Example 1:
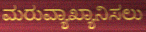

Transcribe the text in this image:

ಮರುವ್ಯಾಖ್ಯಾನಿಸಲು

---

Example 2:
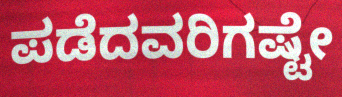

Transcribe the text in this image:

ಪಡೆದವರಿಗಷ್ಟೇ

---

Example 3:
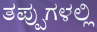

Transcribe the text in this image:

ತಪ್ಪುಗಳಲ್ಲಿ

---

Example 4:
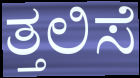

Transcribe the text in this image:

ತ್ತಲಿಸೆ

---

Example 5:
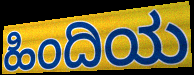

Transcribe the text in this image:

ಹಿಂದಿಯ